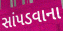
સાંપડવાના